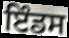
ਇੰਡਸ